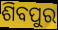
ଶିବପୁର